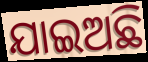
ଯାଇଅଛି